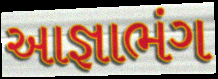
આજ્ઞાભંગ